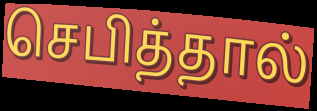
செபித்தால்